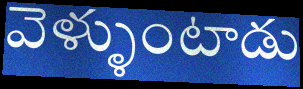
వెళ్ళుంటాడు